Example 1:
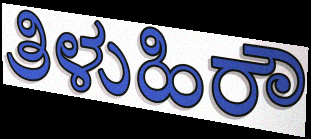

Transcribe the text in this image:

ತಿಳುಹಿರೌ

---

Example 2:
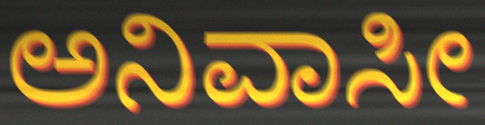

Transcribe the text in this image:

ಅನಿವಾಸೀ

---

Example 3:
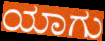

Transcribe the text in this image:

ಯಾಗು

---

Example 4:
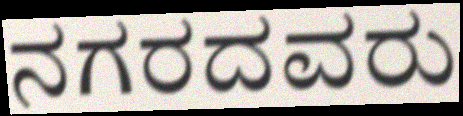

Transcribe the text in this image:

ನಗರದವರು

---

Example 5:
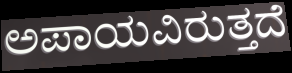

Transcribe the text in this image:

ಅಪಾಯವಿರುತ್ತದೆ